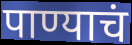
पाण्याचं